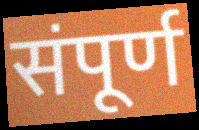
संपूर्ण